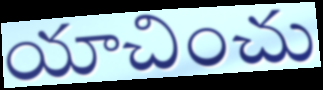
యాచించు